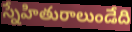
స్నేహితురాలుండేది